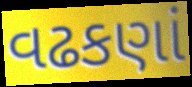
વઢકણાં